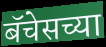
बॅचेसच्या